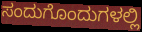
ಸಂದುಗೊಂದುಗಳಲ್ಲಿ